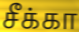
சீக்கா